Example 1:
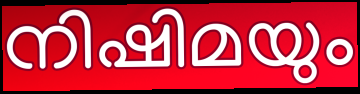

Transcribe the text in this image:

നിഷിമയും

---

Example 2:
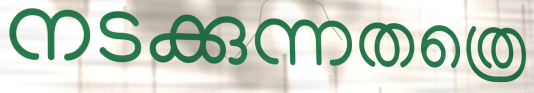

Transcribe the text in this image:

നടക്കുന്നതത്രെ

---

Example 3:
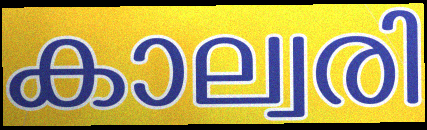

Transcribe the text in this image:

കാല്വരി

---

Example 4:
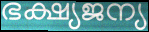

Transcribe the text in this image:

ഭക്ഷ്യജന്യ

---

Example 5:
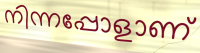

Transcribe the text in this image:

നിന്നപ്പോളാണ്